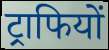
ट्राफियों